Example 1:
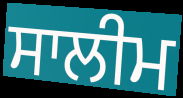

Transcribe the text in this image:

ਸਾਲੀਮ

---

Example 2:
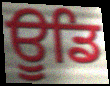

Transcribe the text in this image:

ਊਡਿ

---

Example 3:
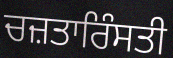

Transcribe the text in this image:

ਚਜ਼ਤਾਰਿੰਸਤੀ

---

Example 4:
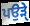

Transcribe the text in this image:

ਪਉੜੑੇ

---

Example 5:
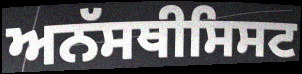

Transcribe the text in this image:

ਅਨੱਸਥੀਸਿਸਟ